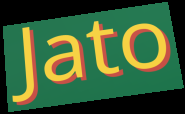
Jato